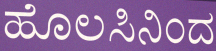
ಹೊಲಸಿನಿಂದ